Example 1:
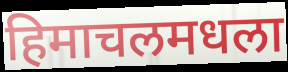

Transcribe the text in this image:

हिमाचलमधला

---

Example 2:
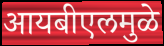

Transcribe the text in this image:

आयबीएलमुळे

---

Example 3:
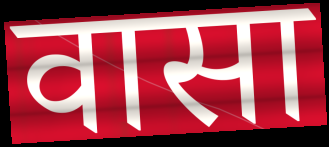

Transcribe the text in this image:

वासा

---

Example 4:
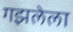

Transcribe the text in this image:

गझलेला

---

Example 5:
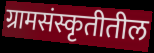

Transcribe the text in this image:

ग्रामसंस्कृतीतील